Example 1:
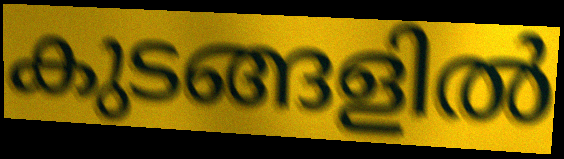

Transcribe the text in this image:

കുടങ്ങളിൽ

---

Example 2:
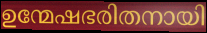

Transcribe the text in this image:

ഉന്മേഷഭരിതനായി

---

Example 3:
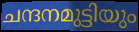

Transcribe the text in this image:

ചന്ദനമുട്ടിയും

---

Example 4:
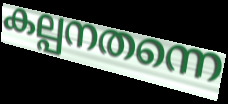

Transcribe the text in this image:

കല്പനതന്നെ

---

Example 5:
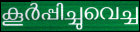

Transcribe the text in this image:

കൂർപ്പിച്ചുവെച്ച